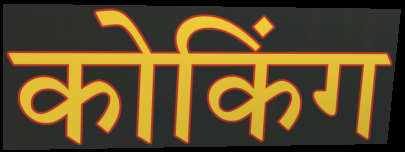
कोकिंग